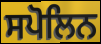
ਸਪੋਲਿਨ